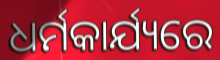
ଧର୍ମକାର୍ଯ୍ୟରେ